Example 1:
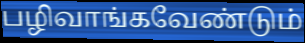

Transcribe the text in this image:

பழிவாங்கவேண்டும்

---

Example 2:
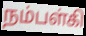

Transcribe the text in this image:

நம்பள்கி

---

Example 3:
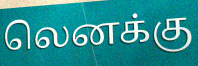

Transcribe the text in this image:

லெனக்கு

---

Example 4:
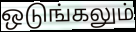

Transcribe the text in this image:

ஒடுங்கலும்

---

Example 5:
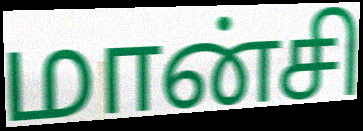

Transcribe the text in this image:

மான்சி